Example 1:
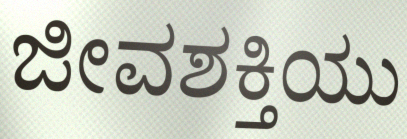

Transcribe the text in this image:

ಜೀವಶಕ್ತಿಯು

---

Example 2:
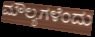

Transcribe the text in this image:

ಮೌಲ್ಯಗಳೆಂದು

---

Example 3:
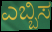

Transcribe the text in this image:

ಎಬ್ಬಿಸ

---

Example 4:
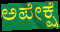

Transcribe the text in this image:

ಅಪೇಕ್ಷೆ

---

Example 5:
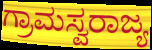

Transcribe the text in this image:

ಗ್ರಾಮಸ್ವರಾಜ್ಯ